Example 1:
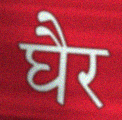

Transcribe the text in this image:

घैर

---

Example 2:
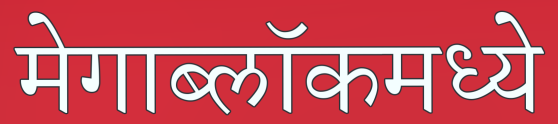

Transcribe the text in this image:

मेगाब्लॉकमध्ये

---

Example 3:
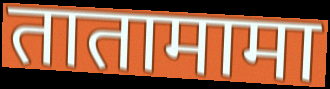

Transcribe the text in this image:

तातामामा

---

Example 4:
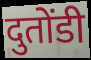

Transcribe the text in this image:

दुतोंडी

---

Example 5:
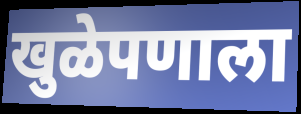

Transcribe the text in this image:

खुळेपणाला